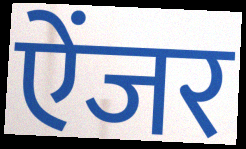
ऐंजर